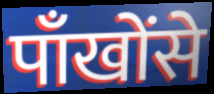
पाँखोंसे